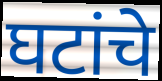
घटांचे